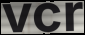
vcr